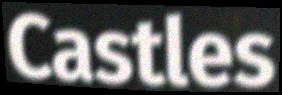
Castles